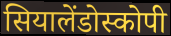
सियालेंडोस्कोपी